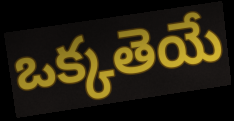
ఒక్కతెయే